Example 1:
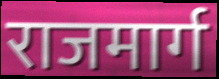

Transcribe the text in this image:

राजमार्ग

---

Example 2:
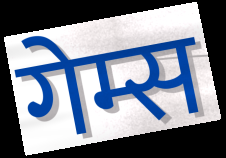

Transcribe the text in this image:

गेम्स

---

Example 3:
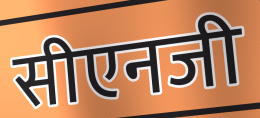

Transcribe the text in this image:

सीएनजी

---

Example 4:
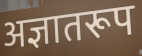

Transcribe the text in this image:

अज्ञातरूप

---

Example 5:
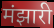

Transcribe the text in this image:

मंझारी